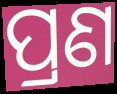
ପ୍ରଣ